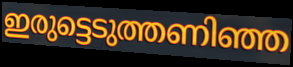
ഇരുട്ടെടുത്തണിഞ്ഞ